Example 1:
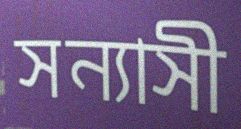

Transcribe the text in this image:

সন্যাসী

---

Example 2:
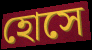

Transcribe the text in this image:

হোসে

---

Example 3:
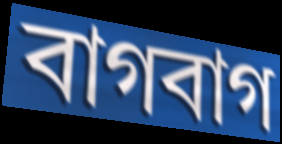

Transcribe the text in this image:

বাগবাগ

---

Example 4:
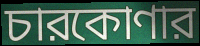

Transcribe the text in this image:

চারকোণার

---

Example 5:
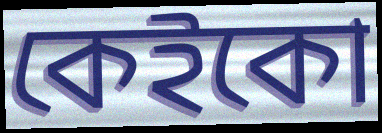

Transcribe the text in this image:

কেইকো